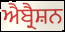
ਐਬ੍ਰੈਸ਼ਨ